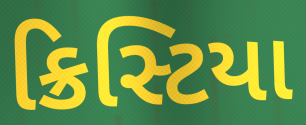
ક્રિસ્ટિયા